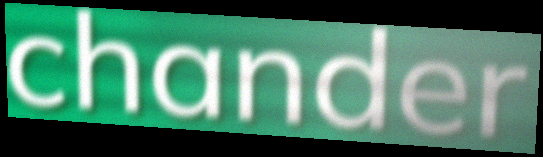
chander